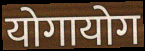
योगायोग